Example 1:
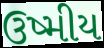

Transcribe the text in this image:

ઉષ્મીય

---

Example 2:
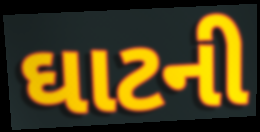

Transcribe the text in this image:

ઘાટની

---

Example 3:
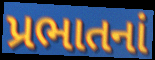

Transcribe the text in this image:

પ્રભાતનાં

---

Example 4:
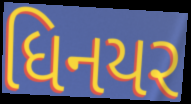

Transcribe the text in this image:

ધિનયર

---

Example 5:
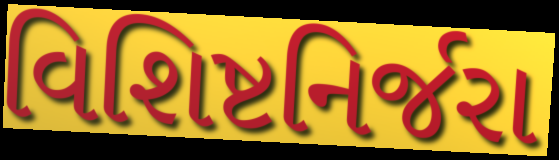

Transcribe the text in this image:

વિશિષ્ટનિર્જરા